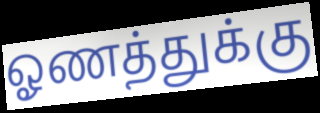
ஓணத்துக்கு